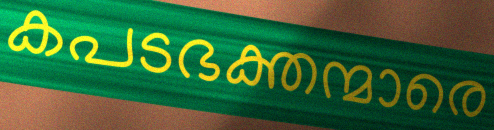
കപടഭക്തന്മാരെ